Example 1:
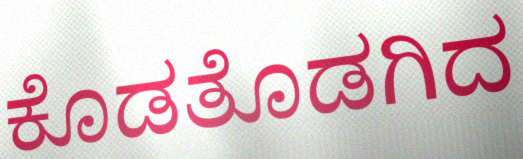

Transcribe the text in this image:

ಕೊಡತೊಡಗಿದ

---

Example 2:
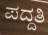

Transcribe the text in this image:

ಪದ್ದತಿ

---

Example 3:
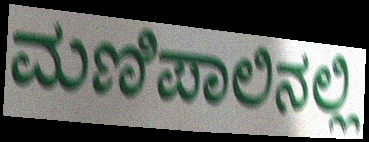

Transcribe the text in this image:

ಮಣಿಪಾಲಿನಲ್ಲಿ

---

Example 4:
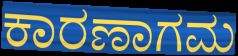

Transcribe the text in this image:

ಕಾರಣಾಗಮ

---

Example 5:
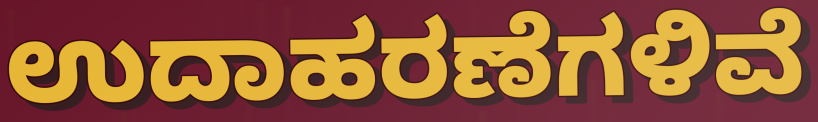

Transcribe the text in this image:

ಉದಾಹರಣೆಗಳಿವೆ